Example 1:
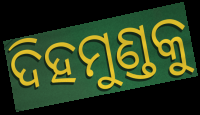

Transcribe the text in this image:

ଦିହମୁଣ୍ଡକୁ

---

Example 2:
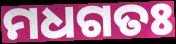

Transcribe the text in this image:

ମଧଗତଃ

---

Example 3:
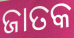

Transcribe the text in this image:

ଜାତକ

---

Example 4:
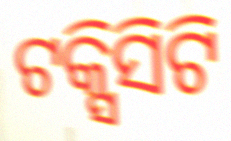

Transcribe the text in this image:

ଟକ୍ସିସିଟି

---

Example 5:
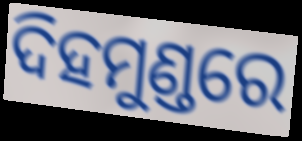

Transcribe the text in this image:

ଦିହମୁଣ୍ଡରେ